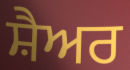
ਸ਼ੈਅਰ